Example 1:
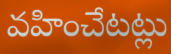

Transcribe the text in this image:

వహించేటట్లు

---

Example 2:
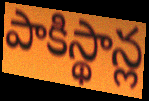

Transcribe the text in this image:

పాకిస్థాన్ల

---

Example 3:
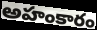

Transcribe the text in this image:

అహంకారం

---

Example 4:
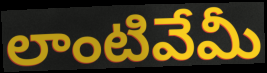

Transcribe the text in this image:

లాంటివేమీ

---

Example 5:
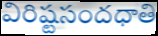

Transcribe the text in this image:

విరిష్టసందధాతి